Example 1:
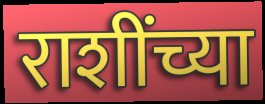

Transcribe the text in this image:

राशींच्या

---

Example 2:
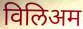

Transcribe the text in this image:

विलिअम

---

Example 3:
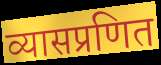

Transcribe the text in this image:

व्यासप्रणित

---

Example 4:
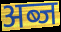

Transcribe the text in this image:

अब्ज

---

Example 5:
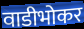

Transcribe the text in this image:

वाडीभोकर